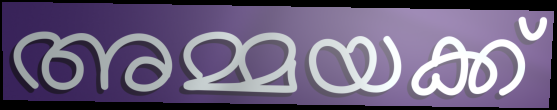
അമ്മയക്ക്